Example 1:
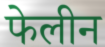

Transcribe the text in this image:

फेलीन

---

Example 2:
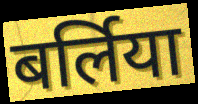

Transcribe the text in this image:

बर्लिया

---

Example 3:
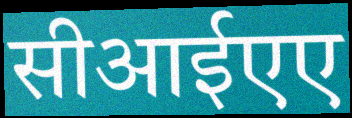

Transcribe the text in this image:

सीआईएए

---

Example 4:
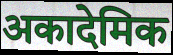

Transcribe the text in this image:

अकादेमिक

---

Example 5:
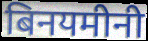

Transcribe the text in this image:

बिनयमीनी